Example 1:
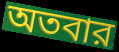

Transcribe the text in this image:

অতবার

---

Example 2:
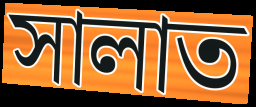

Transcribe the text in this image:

সালাত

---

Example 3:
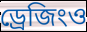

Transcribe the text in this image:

ড্রেজিংও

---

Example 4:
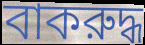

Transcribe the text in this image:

বাকরুদ্ধ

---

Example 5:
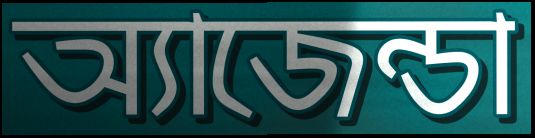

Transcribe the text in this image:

অ্যাজেন্ডা